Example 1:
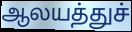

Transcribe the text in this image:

ஆலயத்துச்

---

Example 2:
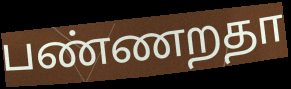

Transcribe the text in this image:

பண்ணறதா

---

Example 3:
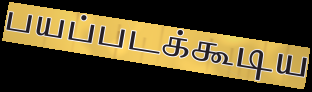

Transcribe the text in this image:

பயப்படக்கூடிய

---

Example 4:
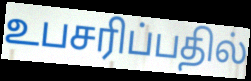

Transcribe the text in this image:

உபசரிப்பதில்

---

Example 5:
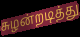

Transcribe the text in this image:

சுழன்றடித்து